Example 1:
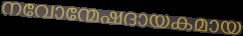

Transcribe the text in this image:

നവോന്മേഷദായകമായ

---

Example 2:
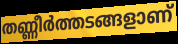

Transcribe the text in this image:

തണ്ണീർത്തടങ്ങളാണ്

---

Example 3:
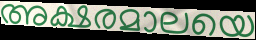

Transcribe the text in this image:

അക്ഷരമാലയെ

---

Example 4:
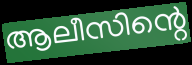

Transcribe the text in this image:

ആലീസിന്റെ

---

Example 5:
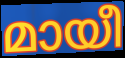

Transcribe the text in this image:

മായീ